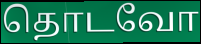
தொடவோ